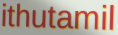
ithutamil